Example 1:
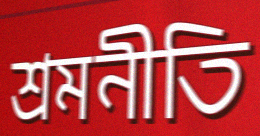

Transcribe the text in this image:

শ্রমনীতি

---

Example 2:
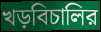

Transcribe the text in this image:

খড়বিচালির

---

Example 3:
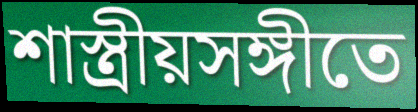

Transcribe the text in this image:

শাস্ত্রীয়সঙ্গীতে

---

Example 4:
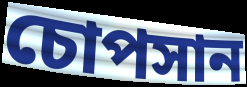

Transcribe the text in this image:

চোপসান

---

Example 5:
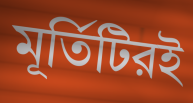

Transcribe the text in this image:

মূর্তিটিরই